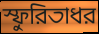
স্ফুরিতাধর